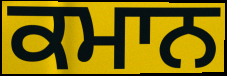
ਕਮਾਨ